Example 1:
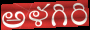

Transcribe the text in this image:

అళగిరి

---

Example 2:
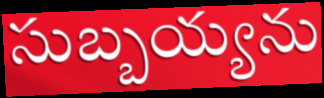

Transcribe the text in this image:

సుబ్బయ్యను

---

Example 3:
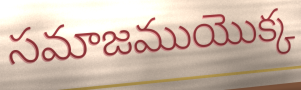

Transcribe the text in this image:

సమాజముయొక్క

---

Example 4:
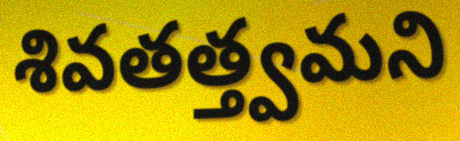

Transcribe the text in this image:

శివతత్త్వమని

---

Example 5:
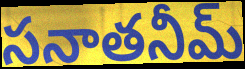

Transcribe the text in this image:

సనాతనీమ్